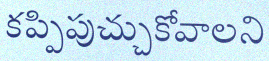
కప్పిపుచ్చుకోవాలని